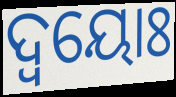
ଦ୍ବୟୋଃ